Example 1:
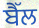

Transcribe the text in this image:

ਬੈੱਲ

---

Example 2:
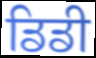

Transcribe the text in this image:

ਡਿਡੀ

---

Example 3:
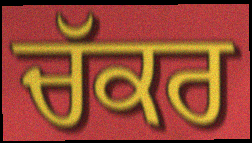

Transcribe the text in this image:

ਚੱਕਰ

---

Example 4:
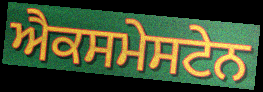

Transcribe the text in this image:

ਐਕਸਮੇਸਟੇਨ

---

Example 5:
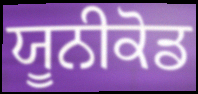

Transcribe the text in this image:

ਯੂਨੀਕੋਡ